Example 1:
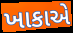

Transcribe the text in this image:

ખાકાએ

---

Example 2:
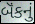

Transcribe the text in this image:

બૅંકનું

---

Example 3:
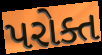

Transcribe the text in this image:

પરોક્ત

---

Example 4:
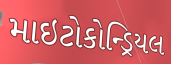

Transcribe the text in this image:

માઇટોકોન્ડ્રિયલ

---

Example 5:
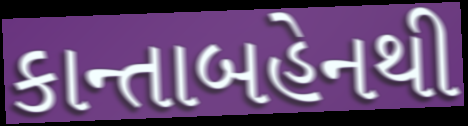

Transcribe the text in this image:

કાન્તાબહેનથી